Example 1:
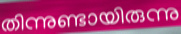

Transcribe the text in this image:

തിന്നുണ്ടായിരുന്നു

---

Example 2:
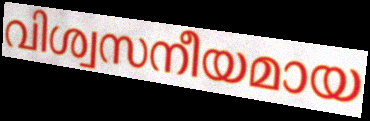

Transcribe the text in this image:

വിശ്വസനീയമായ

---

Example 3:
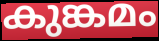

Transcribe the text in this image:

കുങ്കമം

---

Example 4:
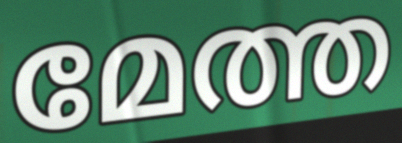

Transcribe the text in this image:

മേത്ത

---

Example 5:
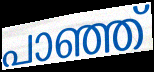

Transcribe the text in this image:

പാഞ്ഞ്